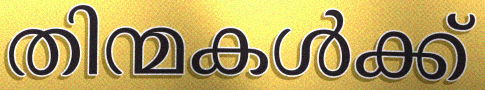
തിന്മകൾക്ക്